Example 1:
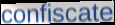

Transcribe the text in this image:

confiscate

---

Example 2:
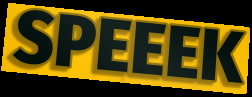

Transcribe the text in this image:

SPEEEK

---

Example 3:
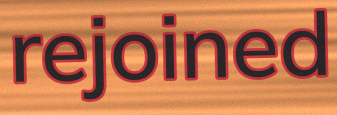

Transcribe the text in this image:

rejoined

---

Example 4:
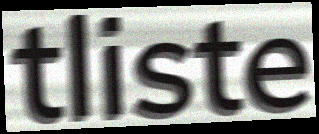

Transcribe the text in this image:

tliste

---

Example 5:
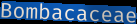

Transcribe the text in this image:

Bombacaceae